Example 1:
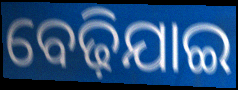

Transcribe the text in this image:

ବେଢ଼ିଯାଇ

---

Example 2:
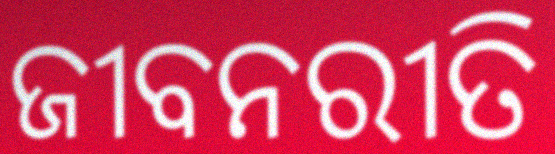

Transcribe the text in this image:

ଜୀବନରୀତି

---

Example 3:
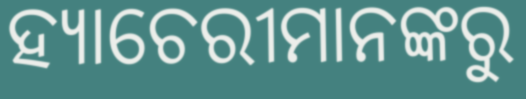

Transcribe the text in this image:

ହ୍ୟାଚେରୀମାନଙ୍କରୁ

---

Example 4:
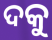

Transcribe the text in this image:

ଦକୁ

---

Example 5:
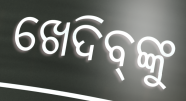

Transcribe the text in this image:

ଖେଦିବ୍‌ଙ୍କୁ